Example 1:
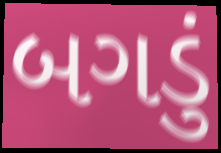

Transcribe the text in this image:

બગડું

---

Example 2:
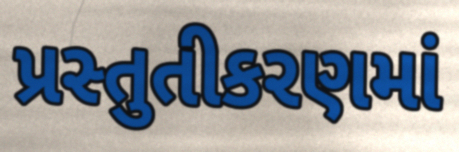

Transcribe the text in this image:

પ્રસ્તુતીકરણમાં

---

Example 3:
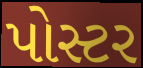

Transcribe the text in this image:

પોસ્ટર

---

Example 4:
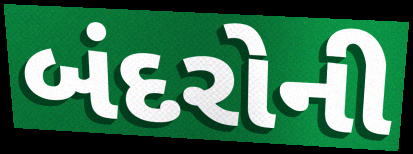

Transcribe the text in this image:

બંદરોની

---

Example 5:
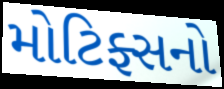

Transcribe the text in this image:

મોટિફ્સનો